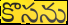
కొసను